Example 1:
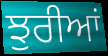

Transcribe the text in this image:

ਝੁਰੀਆਂ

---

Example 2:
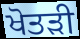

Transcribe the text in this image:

ਖੋਤੜੀ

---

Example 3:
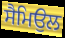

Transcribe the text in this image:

ਸੈਮਿਉਲ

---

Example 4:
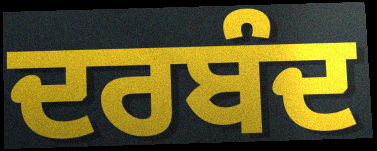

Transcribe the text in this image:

ਦਰਬੰਦ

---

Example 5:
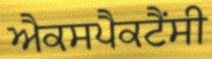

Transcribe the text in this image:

ਐਕਸਪੈਕਟੈਂਸੀ